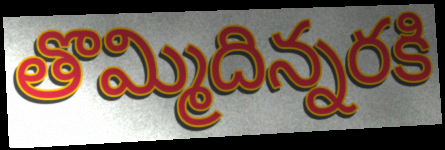
తొమ్మిదిన్నరకి